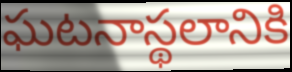
ఘటనాస్థలానికి